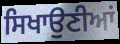
ਸਿਖਾਉਣੀਆਂ